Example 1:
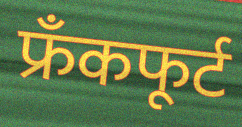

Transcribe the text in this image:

फ्रँकफूर्ट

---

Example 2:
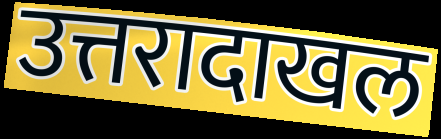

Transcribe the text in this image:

उत्तरादाखल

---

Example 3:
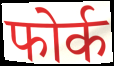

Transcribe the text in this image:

फोर्क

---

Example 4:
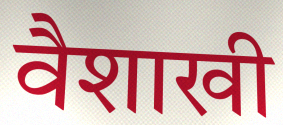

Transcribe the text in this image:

वैशाखी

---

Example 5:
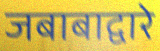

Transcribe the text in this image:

जबाबाद्वारे